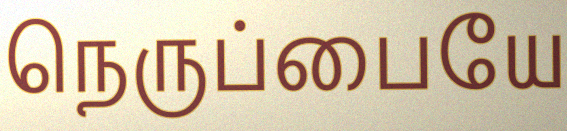
நெருப்பையே